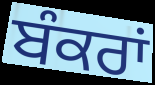
ਬੰਕਰਾਂ